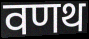
वणथ